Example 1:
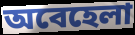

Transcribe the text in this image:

অবেহেলা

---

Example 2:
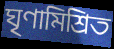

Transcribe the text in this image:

ঘৃণামিশ্রিত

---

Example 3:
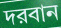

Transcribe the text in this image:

দরবান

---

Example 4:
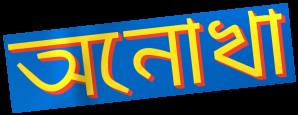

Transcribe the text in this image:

অনোখা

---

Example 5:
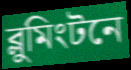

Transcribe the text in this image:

ব্লুমিংটনে